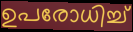
ഉപരോധിച്ച്